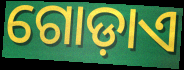
ଗୋଡ଼ାଏ